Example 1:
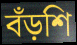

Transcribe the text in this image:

বঁড়শি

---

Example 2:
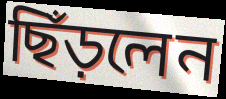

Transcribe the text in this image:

ছিঁড়লেন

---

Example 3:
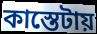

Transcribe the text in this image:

কাস্তেটায়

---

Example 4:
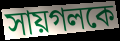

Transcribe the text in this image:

সায়গলকে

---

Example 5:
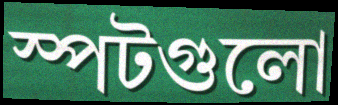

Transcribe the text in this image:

স্পটগুলো